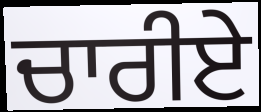
ਚਾਰੀਏ